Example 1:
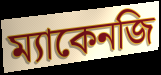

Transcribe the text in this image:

ম্যাকেনজি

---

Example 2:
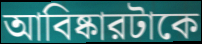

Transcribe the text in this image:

আবিষ্কারটাকে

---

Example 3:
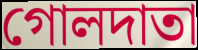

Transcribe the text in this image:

গোলদাতা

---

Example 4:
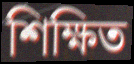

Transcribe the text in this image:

শিক্ষিত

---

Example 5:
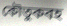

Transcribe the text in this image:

কৌতুকবহ